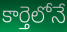
కార్తెలోనే